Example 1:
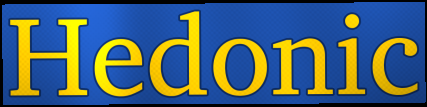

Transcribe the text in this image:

Hedonic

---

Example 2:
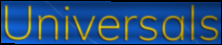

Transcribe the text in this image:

Universals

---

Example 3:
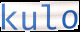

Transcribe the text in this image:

kulo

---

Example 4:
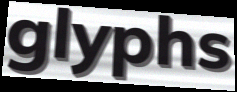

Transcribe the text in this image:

glyphs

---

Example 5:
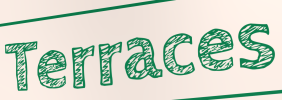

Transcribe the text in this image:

Terraces